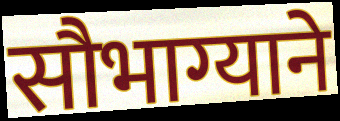
सौभाग्याने